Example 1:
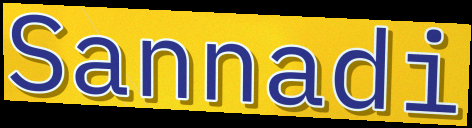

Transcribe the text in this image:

Sannadi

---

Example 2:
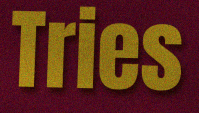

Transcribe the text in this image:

Tries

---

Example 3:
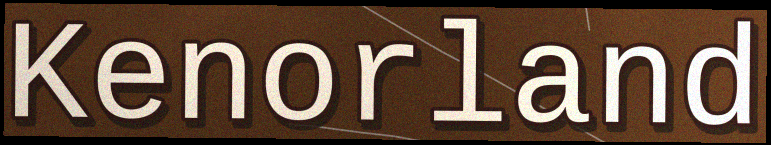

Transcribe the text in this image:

Kenorland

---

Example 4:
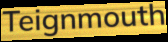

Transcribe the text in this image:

Teignmouth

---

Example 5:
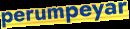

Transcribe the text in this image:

perumpeyar